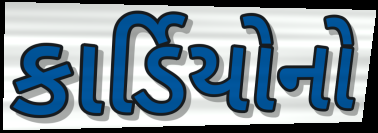
કાર્ડિયોનો